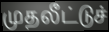
முதலீட்டுச்